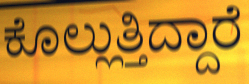
ಕೊಲ್ಲುತ್ತಿದ್ದಾರೆ